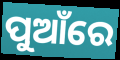
ପୁଆଁରେ